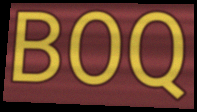
BOQ